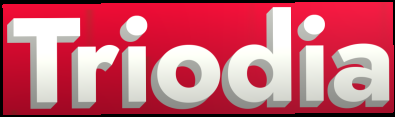
Triodia